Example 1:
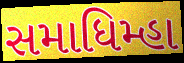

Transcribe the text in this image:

સમાધિમ્હા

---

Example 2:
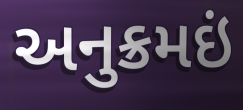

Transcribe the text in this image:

અનુક્રમઇં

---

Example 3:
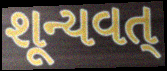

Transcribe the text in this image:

શૂન્યવત્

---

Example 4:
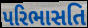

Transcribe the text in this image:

પરિભાસતિ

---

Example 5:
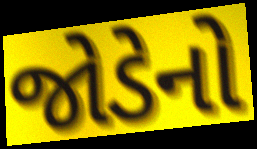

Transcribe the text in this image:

જોડેનો